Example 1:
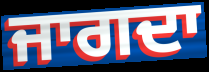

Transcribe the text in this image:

ਜਾਗਦਾ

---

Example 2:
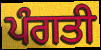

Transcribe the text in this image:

ਪੰਗਤੀ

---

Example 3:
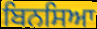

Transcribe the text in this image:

ਬਿਨਸਿਆ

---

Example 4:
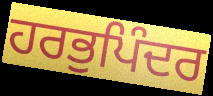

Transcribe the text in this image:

ਹਰਭੁਪਿੰਦਰ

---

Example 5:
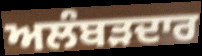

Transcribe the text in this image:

ਅਲੰਬੜਦਾਰ